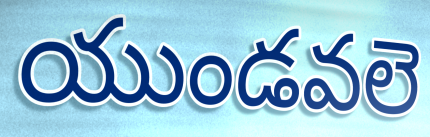
యుండవలె